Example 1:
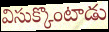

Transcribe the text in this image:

విసుక్కొంటాడు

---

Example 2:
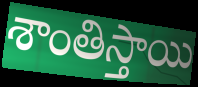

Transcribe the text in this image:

శాంతిస్తాయి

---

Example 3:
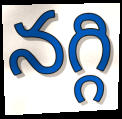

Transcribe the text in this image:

నగ్గి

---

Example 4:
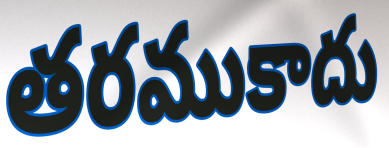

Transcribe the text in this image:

తరముకాదు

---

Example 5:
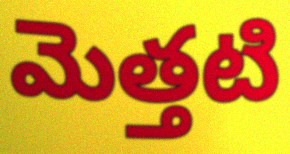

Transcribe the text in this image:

మెత్తటి